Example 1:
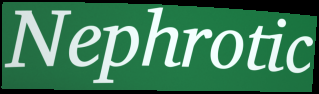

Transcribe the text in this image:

Nephrotic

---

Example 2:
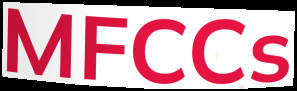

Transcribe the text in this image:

MFCCs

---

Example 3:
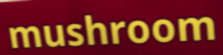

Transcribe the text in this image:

mushroom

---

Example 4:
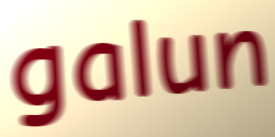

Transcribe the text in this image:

galun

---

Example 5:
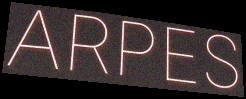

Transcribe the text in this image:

ARPES